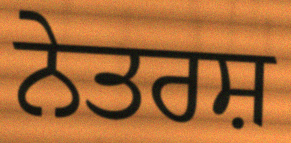
ਨੇਤਰਸ਼